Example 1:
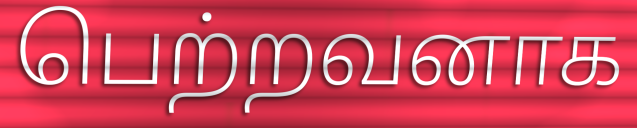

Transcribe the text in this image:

பெற்றவனாக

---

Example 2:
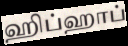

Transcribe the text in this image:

ஹிப்ஹாப்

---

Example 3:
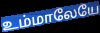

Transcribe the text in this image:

உம்மாலேயே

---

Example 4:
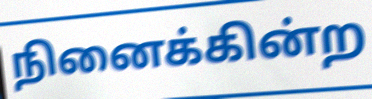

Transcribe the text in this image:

நினைக்கின்ற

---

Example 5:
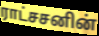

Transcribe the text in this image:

ராட்சசனின்